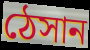
ঠেসান